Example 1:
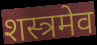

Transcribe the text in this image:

शस्त्रमेव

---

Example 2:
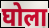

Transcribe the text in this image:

घोला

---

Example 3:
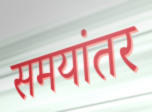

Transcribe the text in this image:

समयांतर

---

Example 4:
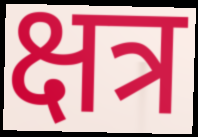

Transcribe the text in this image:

क्षत्र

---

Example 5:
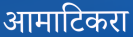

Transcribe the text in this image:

आमाटिकरा